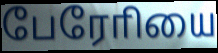
பேரேரியை